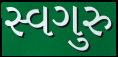
સ્વગુરુ